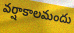
వర్షాకాలమందు